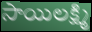
సాయిలక్ష్మి